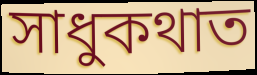
সাধুকথাত